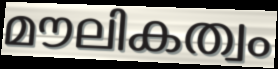
മൗലികത്വം